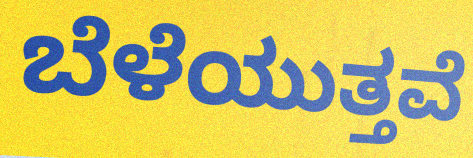
ಬೆಳೆಯುತ್ತವೆ